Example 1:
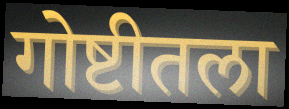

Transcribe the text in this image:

गोष्टीतला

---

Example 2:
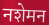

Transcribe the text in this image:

नशेमन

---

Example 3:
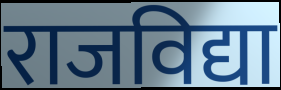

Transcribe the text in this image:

राजविद्या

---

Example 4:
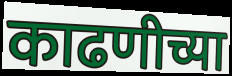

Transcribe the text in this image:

काढणीच्या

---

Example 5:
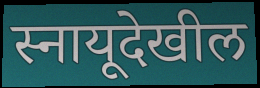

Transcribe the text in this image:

स्नायूदेखील